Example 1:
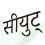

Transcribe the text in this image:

सीयुट्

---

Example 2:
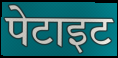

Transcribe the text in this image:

पेटाइट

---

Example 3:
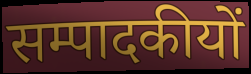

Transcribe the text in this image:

सम्पादकीयों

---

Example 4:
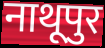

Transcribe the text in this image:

नाथूपुर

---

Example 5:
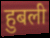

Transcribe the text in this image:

हुबली